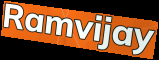
Ramvijay